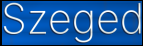
Szeged